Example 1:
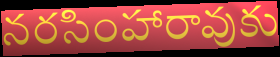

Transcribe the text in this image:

నరసింహారావుకు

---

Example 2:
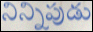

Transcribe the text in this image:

నిన్నిపుడు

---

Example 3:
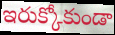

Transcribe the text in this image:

ఇరుక్కోకుండా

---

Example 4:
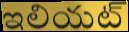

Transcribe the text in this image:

ఇలియట్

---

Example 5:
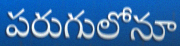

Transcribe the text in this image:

పరుగులోనూ